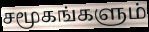
சமூகங்களும்